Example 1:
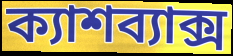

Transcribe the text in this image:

ক্যাশব্যাক্স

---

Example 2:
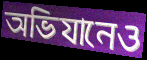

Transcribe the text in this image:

অভিযানেও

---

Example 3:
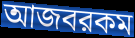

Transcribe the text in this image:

আজবরকম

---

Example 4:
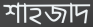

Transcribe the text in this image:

শাহজাদ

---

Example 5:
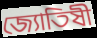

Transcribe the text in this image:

জ্যোতিষী